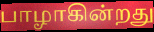
பாழாகின்றது